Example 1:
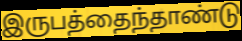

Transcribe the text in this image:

இருபத்தைந்தாண்டு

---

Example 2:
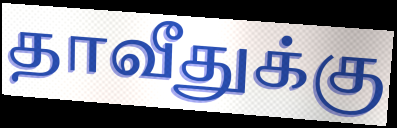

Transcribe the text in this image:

தாவீதுக்கு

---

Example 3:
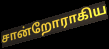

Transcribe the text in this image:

சான்றோராகிய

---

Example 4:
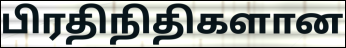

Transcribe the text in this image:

பிரதிநிதிகளான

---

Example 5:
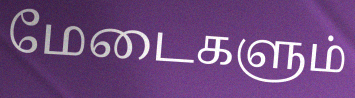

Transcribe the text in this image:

மேடைகளும்